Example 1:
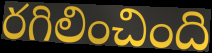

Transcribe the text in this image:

రగిలించింది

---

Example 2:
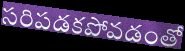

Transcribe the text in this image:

సరిపడకపోవడంతో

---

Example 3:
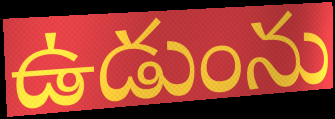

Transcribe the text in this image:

ఉడుంను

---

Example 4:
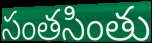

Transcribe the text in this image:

సంతసింతు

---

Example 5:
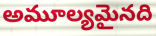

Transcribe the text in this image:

అమూల్యమైనది